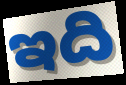
ఇది